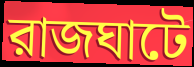
রাজঘাটে